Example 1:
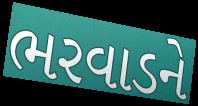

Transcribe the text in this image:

ભરવાડને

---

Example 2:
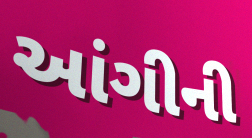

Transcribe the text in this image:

આંગીની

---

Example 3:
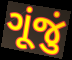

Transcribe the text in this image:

ગૂંજું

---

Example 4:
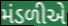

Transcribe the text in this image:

મંડળીએ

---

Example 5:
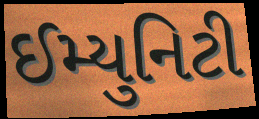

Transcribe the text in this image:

ઈમ્યુનિટી